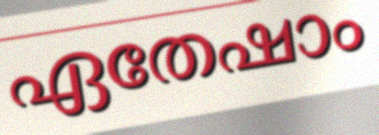
ഏതേഷാം